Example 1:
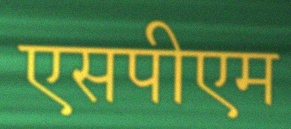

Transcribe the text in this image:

एसपीएम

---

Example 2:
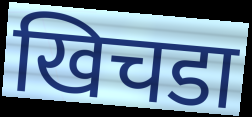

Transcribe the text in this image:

खिचडा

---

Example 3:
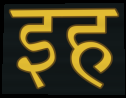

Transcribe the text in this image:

इह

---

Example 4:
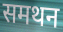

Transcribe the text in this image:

समथन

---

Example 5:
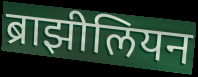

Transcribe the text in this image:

ब्राझीलियन